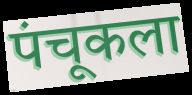
पंचूकला